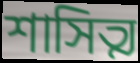
শাসিত্ম